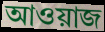
আওয়াজ